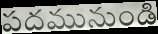
పదమునుండి